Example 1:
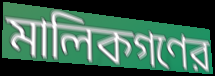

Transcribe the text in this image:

মালিকগণের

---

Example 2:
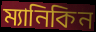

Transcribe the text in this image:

ম্যানিকিন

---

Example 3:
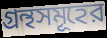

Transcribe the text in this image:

গ্রন্থসমূহের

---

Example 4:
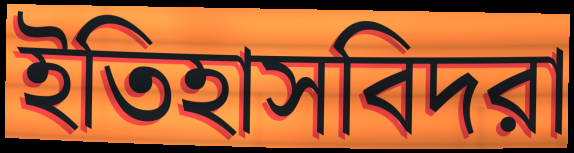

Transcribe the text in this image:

ইতিহাসবিদরা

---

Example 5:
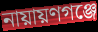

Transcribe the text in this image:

নায়ায়ণগঞ্জে